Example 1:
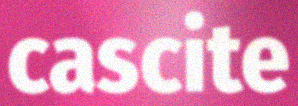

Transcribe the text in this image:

cascite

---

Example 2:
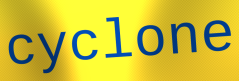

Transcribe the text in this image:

cyclone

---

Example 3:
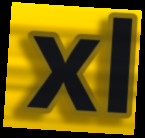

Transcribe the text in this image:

xl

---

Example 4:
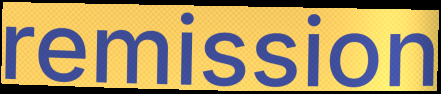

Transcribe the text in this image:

remission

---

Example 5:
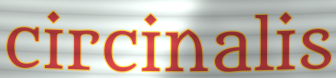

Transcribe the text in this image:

circinalis